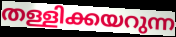
തള്ളിക്കയറുന്ന